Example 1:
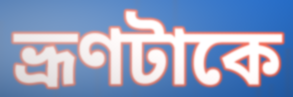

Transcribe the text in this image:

ভ্রূণটাকে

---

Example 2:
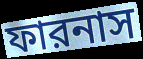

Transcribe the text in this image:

ফারনাস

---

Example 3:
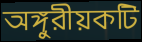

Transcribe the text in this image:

অঙ্গুরীয়কটি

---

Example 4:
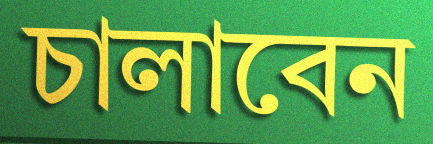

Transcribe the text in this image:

চালাবেন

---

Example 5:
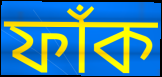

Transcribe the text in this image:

ফাঁক